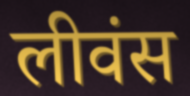
लीवंस